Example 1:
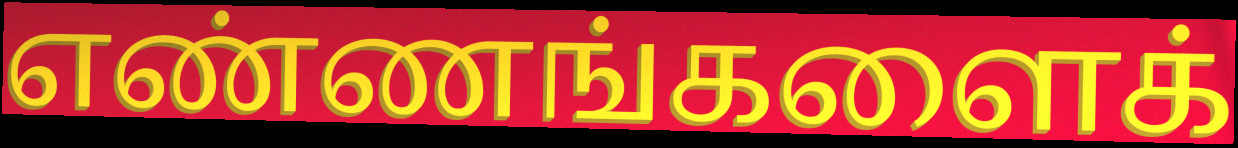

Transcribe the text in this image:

எண்ணங்களைக்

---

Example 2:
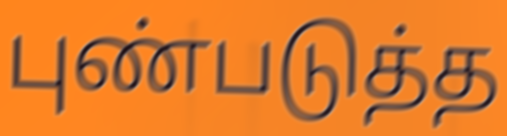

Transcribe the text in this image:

புண்படுத்த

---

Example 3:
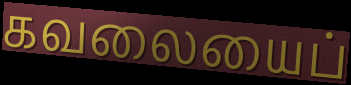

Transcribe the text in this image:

கவலையைப்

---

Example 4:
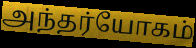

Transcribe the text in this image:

அந்தர்யோகம்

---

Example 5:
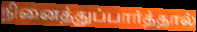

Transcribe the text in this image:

நினைத்துப்பார்த்தால்